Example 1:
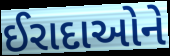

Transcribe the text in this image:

ઈરાદાઓને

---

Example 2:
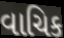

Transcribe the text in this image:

વાચિક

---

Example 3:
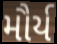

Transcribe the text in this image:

મૌર્ય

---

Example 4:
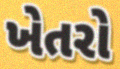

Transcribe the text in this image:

ખેતરો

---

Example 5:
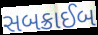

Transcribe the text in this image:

સબક્રાઈબ